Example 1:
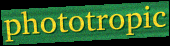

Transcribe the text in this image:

phototropic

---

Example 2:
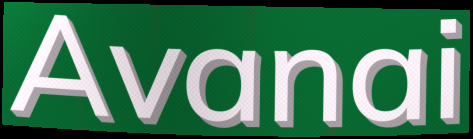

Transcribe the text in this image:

Avanai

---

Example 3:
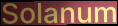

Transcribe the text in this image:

Solanum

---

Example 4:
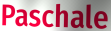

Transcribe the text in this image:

Paschale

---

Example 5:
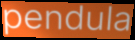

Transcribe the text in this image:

pendula